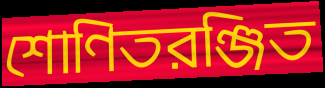
শোণিতরঞ্জিত